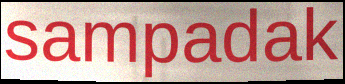
sampadak